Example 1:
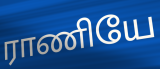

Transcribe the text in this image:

ராணியே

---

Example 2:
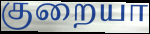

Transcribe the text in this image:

குறையா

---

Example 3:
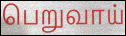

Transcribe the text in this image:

பெறுவாய்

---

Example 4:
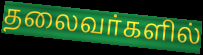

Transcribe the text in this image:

தலைவர்களில்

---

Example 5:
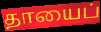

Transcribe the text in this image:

தாயைப்